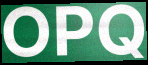
OPQ